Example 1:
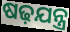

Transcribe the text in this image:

ଷଢ଼ଯନ୍ତ୍ର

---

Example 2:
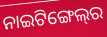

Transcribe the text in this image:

ନାଇଟିଙ୍ଗେଲ୍‌ର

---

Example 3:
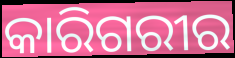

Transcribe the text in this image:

କାରିଗରୀର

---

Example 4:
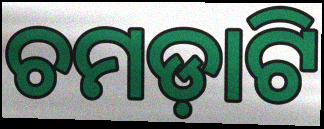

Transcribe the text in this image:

ଚମଡ଼ାଟି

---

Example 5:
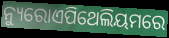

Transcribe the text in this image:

ନ୍ୟୁରୋଏପିଥେଲିୟମରେ